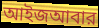
আইজআবার